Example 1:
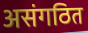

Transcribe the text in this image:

असंगठित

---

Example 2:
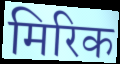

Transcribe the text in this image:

मिरिक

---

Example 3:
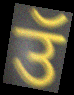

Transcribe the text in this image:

उॅ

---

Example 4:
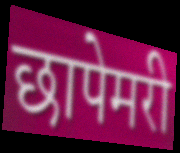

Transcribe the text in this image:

छापेमरी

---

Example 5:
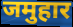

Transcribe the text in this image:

जमुहार